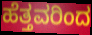
ಹೆತ್ತವರಿಂದ